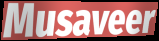
Musaveer